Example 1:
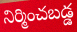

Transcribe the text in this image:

నిర్మించబడ్డ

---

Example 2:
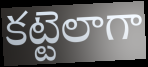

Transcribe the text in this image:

కట్టెలాగా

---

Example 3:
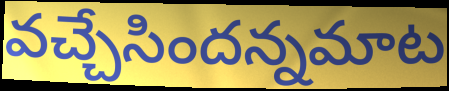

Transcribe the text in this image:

వచ్చేసిందన్నమాట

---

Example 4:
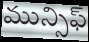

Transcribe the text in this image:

మున్సిఫ్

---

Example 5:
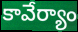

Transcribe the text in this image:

కావేర్యాం